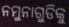
ନମୁନାଗୁଡିକୁ